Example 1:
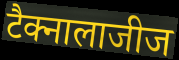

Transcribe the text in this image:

टैक्नालाजीज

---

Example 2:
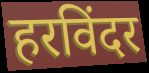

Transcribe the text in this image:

हरविंदर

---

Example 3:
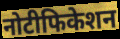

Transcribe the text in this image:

नोटीफिकेशन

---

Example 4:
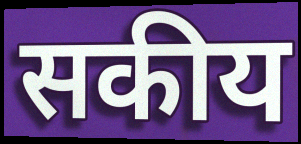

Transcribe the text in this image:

सकीय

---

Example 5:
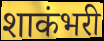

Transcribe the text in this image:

शाकंभरी